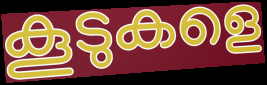
കൂടുകളെ